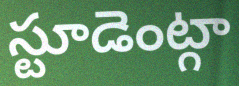
స్టూడెంట్గా